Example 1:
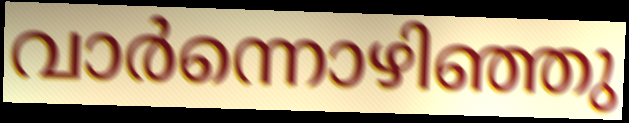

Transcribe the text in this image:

വാർന്നൊഴിഞ്ഞു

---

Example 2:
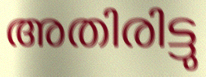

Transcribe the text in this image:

അതിരിട്ടു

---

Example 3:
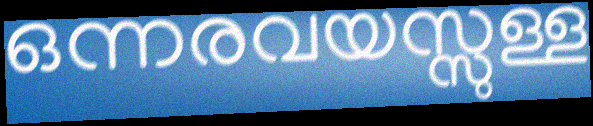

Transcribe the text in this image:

ഒന്നരവയസ്സുള്ള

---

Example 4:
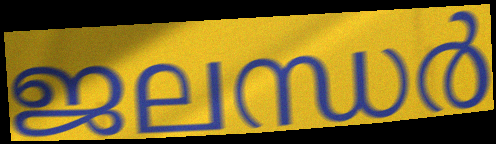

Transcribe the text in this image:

ജലന്ധർ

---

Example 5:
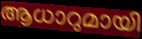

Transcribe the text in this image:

ആധാറുമായി